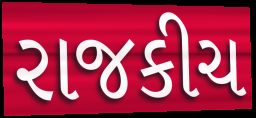
રાજકીચ